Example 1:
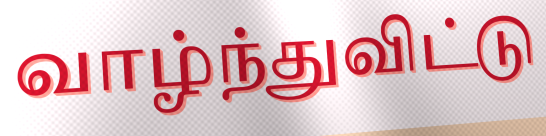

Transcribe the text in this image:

வாழ்ந்துவிட்டு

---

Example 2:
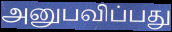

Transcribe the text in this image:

அனுபவிப்பது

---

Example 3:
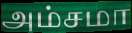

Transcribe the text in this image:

அம்சமா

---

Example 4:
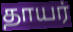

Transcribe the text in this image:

தாயர்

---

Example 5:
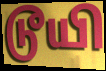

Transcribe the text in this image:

டூயி